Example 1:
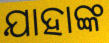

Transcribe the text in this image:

ଯାହାଙ୍କ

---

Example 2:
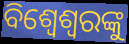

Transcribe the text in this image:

ବିଶ୍ୱେଶ୍ୱରଙ୍କୁ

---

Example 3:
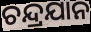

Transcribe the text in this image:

ଚନ୍ଦ୍ରଯାନ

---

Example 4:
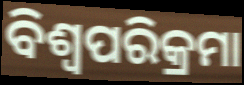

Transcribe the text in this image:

ବିଶ୍ୱପରିକ୍ରମା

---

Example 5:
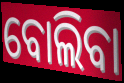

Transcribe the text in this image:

ବୋଲିବା